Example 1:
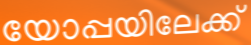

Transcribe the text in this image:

യോപ്പയിലേക്ക്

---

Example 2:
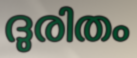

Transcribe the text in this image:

ദുരിതം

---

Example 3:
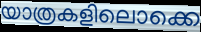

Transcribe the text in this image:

യാത്രകളിലൊക്കെ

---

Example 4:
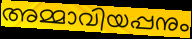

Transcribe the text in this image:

അമ്മാവിയപ്പനും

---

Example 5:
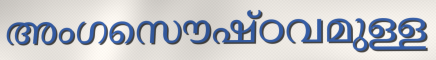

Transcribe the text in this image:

അംഗസൌഷ്ഠവമുള്ള